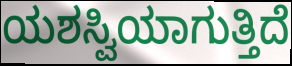
ಯಶಸ್ವಿಯಾಗುತ್ತಿದೆ